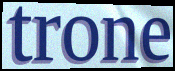
trone